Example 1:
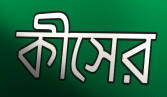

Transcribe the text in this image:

কীসের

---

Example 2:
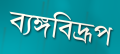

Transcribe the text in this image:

ব্যঙ্গবিদ্রূপ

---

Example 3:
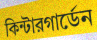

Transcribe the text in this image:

কিন্টারগার্ডেন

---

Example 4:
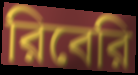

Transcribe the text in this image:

রিবেরি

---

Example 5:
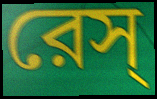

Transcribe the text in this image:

রেস্